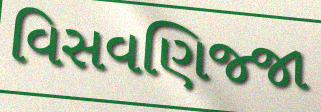
વિસવણિજ્જા